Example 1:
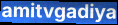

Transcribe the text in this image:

amitvgadiya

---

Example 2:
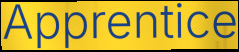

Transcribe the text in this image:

Apprentice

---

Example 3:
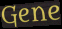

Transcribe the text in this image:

Gene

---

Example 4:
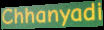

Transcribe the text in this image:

Chhanyadi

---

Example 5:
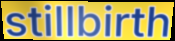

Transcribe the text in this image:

stillbirth